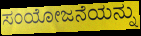
ಸಂಯೋಜನೆಯನ್ನು